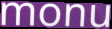
monu